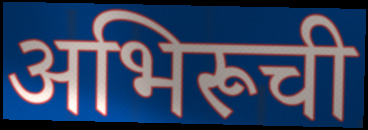
अभिरूची